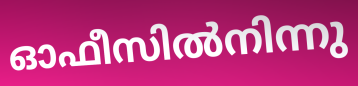
ഓഫീസിൽനിന്നു